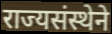
राज्यसंस्थेने